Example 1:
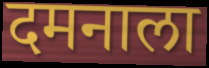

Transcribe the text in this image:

दमनाला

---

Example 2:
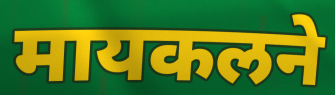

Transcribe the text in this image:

मायकलने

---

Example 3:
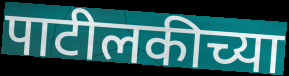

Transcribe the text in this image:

पाटीलकीच्या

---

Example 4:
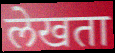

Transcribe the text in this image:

लेखता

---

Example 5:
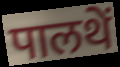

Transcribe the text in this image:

पालथें